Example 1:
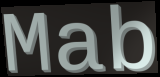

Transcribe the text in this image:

Mab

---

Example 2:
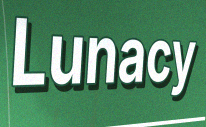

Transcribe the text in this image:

Lunacy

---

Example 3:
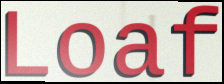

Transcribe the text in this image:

Loaf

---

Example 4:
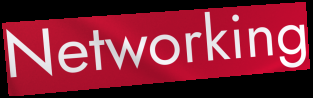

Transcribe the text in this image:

Networking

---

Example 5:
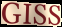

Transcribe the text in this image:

GISS